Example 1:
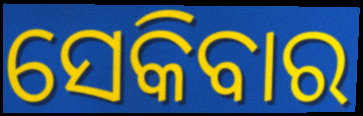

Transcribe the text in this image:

ସେକିବାର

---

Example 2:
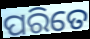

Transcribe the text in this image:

ପରିତେ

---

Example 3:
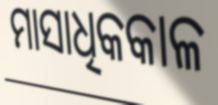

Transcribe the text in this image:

ମାସାଧିକକାଳ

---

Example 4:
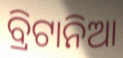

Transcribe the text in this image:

ବ୍ରିଟାନିଆ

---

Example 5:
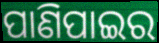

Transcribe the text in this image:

ପାଣିପାଇର